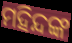
ମହିନ୍ଦଙ୍କ